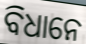
ବିଧାନେ